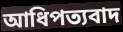
আধিপত্যবাদ